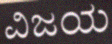
ವಿಜಯ